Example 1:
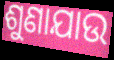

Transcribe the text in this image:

ଶୁଣାଯାଉ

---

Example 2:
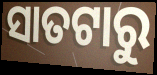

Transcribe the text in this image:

ସାତଟାରୁ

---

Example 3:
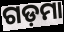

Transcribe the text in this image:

ଗଡ଼ମା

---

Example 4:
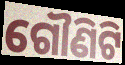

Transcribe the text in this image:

ଗୌଣିଟି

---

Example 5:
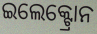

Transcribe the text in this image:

ଇଲେକ୍ଟ୍ରୋନ